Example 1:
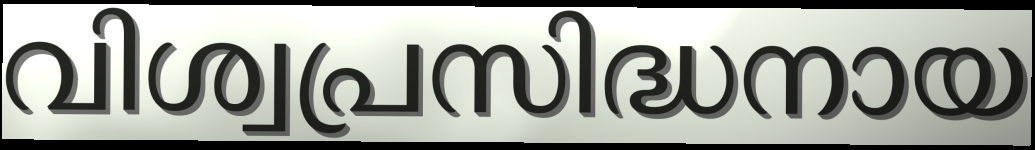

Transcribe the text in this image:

വിശ്വപ്രസിദ്ധനായ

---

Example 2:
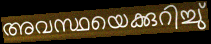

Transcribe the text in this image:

അവസ്ഥയെക്കുറിച്ചു്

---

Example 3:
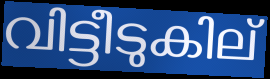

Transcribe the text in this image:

വിട്ടീടുകില്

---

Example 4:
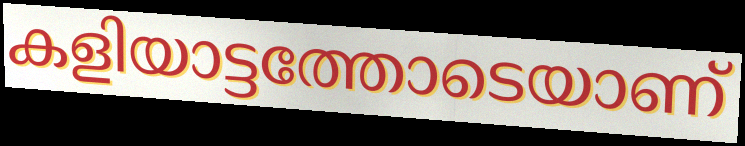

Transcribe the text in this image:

കളിയാട്ടത്തോടെയാണ്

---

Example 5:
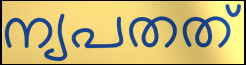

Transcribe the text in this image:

ന്യപതത്